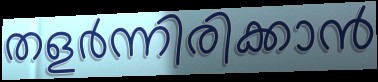
തളർന്നിരിക്കാൻ